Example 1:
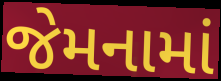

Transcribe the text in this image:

જેમનામાં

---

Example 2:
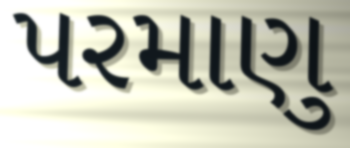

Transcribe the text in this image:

પરમાણુ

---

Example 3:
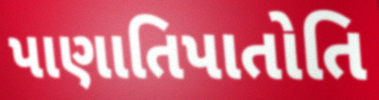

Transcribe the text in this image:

પાણાતિપાતોતિ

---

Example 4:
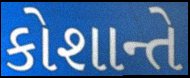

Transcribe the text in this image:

કોશાન્તે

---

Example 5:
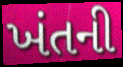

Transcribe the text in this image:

ખંતની